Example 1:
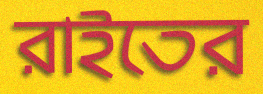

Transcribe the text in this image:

রাইতের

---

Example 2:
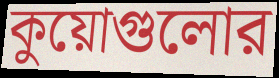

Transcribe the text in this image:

কুয়োগুলোর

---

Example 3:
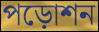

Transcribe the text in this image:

পড়োশন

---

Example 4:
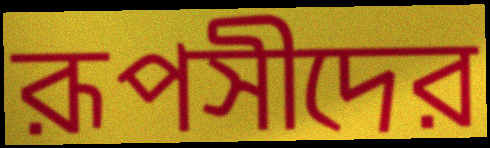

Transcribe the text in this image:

রূপসীদের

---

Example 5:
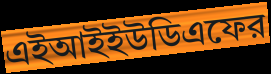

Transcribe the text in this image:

এইআইইউডিএফের